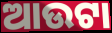
ଆଉଟା